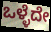
ಒಳ್ಳೆದೇ